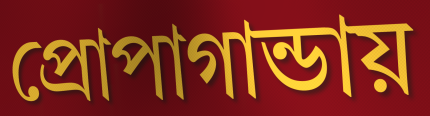
প্রোপাগান্ডায়